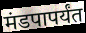
मंडपापर्यंत